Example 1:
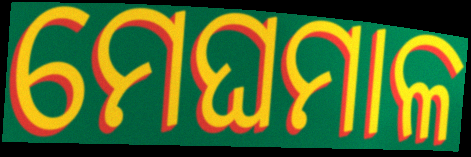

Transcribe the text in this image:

ମେଘମାଳ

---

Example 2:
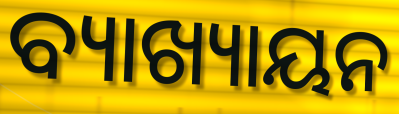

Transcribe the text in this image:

ବ୍ୟାଖ୍ୟାୟନ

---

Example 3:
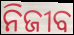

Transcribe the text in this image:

ନିଜୀବ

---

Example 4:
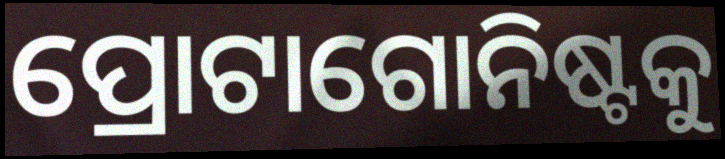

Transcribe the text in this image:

ପ୍ରୋଟାଗୋନିଷ୍ଟକୁ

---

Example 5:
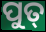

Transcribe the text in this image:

ପୁତ୍